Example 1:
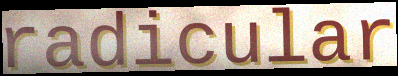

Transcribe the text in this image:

radicular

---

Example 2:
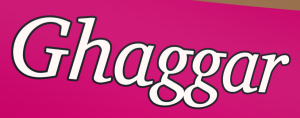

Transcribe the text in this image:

Ghaggar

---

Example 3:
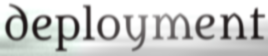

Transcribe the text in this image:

deployment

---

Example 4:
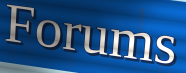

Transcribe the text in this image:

Forums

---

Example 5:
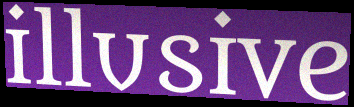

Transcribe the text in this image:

illusive